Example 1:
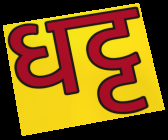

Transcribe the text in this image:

धट्ट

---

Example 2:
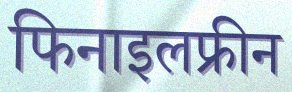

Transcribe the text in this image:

फिनाइलफ्रीन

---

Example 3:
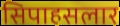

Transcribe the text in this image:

सिपाहसलार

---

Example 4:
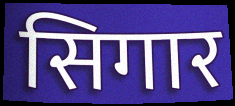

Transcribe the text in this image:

सिगार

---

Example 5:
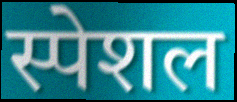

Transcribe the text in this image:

स्‍पेशल